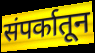
संपर्कातून